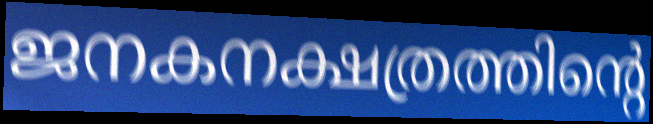
ജനകനക്ഷത്രത്തിന്റെ